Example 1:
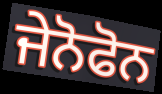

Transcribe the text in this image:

ਜੇਨੋਫੋਨ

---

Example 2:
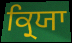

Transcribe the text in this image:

ਕ੍ਰਿਯਾ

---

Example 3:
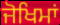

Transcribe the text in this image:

ਜੋਖਿਮਾਂ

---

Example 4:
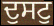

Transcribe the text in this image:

ਦੁਸਟੁ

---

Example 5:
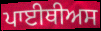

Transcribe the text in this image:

ਪਾਈਥੀਅਸ